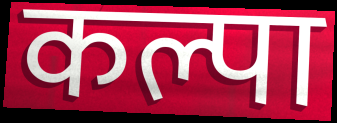
कल्पा